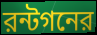
রন্টগনের